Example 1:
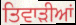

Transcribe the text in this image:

ਤਿਵਾੜੀਆਂ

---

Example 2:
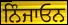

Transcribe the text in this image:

ਨਿੰਜਾਓਨ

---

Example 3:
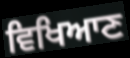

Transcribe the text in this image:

ਵਿਖਿਆਣ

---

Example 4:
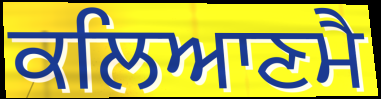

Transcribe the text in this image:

ਕਲਿਆਣਮੈ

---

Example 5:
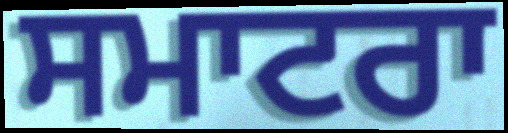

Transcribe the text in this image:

ਸਮਾਟਰਾ